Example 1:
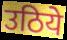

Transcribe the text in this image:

उठिये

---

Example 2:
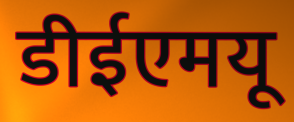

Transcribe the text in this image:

डीईएमयू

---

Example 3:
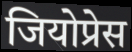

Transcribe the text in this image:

जियोप्रेस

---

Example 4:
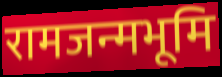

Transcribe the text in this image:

रामजन्मभूमि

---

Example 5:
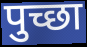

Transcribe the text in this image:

पुच्छा